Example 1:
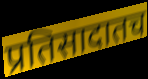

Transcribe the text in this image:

प्रतिसादातच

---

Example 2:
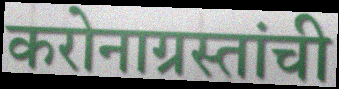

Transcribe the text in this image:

करोनाग्रस्तांची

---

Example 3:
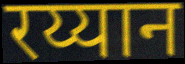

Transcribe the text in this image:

रय्यान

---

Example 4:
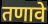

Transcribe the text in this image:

तणावे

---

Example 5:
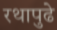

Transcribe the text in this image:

रथापुढे